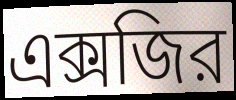
এক্সজির